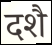
दशै